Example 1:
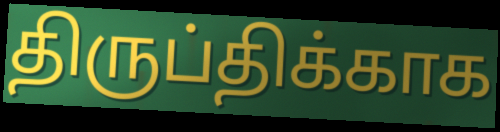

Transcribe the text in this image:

திருப்திக்காக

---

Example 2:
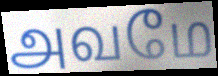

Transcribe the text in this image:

அவமே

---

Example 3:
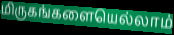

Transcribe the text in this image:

மிருகங்களையெல்லாம்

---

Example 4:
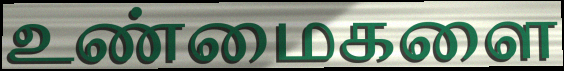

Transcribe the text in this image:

உண்மைகளை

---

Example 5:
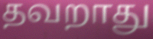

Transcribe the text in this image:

தவறாது